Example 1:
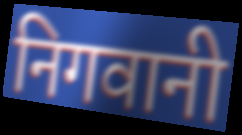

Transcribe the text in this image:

निगवानी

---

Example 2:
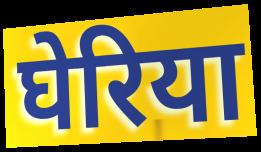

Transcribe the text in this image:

घेरिया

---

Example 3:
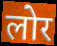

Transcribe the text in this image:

लोर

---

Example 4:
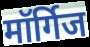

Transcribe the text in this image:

मॉर्गिज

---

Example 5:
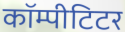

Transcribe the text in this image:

कॉम्पीटिटर